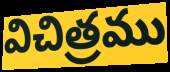
విచిత్రము